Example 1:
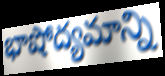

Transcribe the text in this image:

భాషోద్యమాన్ని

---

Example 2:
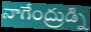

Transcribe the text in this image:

నాగేంద్రుడ్ని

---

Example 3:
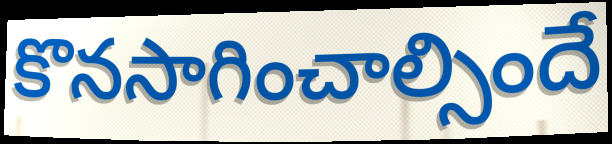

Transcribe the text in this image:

కొనసాగించాల్సిందే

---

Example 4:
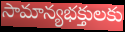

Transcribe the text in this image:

సామాన్యభక్తులకు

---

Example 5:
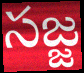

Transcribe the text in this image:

సజ్జ